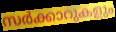
സർക്കാറുകളും